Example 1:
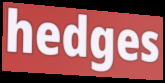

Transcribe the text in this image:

hedges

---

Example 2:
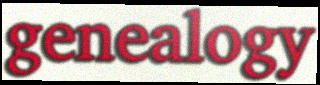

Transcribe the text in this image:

genealogy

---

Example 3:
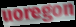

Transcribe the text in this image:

uoregon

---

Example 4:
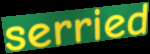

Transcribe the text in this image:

serried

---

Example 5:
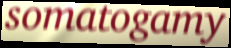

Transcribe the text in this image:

somatogamy